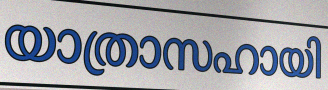
യാത്രാസഹായി